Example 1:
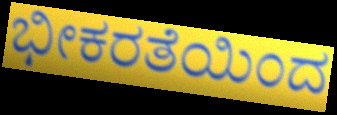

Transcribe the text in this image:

ಭೀಕರತೆಯಿಂದ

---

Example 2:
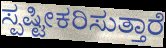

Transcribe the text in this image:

ಸ್ಪಷ್ಟೀಕರಿಸುತ್ತಾರೆ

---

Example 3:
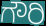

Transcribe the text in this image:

ಗೌರಿ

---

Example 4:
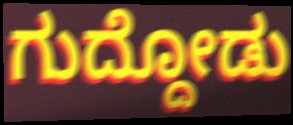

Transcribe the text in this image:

ಗುದ್ದೋಡು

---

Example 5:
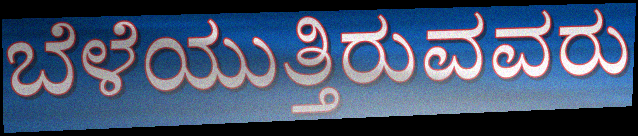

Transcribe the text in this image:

ಬೆಳೆಯುತ್ತಿರುವವರು